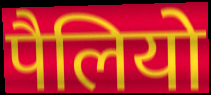
पैलियो